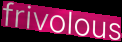
frivolous